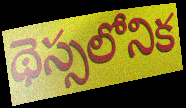
థెస్సలోనిక